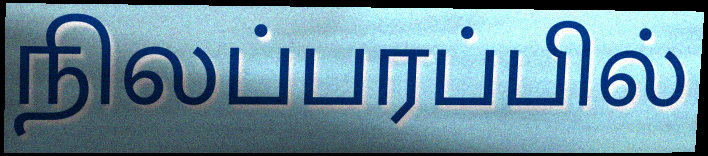
நிலப்பரப்பில்